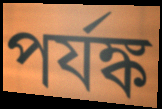
পর্যঙ্ক